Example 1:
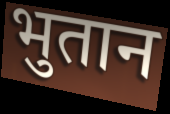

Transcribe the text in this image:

भुतान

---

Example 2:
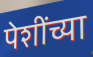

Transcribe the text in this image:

पेशींच्या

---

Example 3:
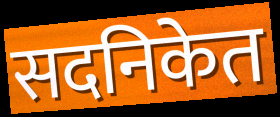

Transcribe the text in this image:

सदनिकेत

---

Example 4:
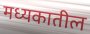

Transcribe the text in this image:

मध्यकातील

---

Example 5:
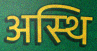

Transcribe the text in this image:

अस्थि